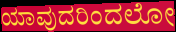
ಯಾವುದರಿಂದಲೋ